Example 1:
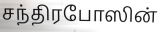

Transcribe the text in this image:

சந்திரபோஸின்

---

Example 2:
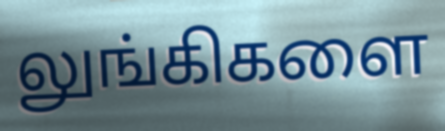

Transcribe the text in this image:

லுங்கிகளை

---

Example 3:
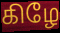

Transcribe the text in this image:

கிழே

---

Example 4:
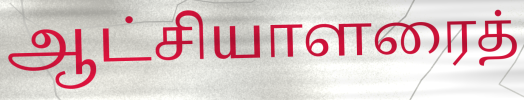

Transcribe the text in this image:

ஆட்சியாளரைத்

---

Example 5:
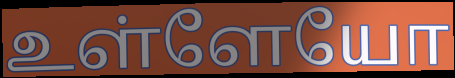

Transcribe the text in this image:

உள்ளேயோ